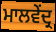
ਮਾਲਵੇਂਦ੍ਰ